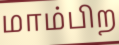
மாம்பிற